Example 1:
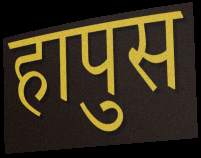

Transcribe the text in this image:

हापुस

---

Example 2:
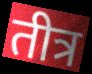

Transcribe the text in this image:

तीत्र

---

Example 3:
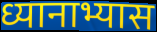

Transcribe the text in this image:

ध्यानाभ्यास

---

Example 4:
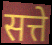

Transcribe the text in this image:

सत्ते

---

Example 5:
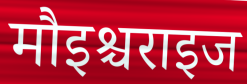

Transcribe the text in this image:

मौइश्चराइज